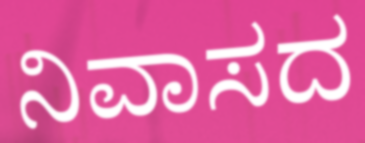
ನಿವಾಸದ